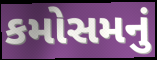
કમોસમનું